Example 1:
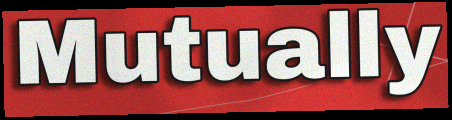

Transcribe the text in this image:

Mutually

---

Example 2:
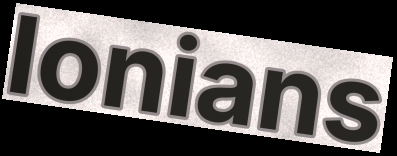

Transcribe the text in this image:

Ionians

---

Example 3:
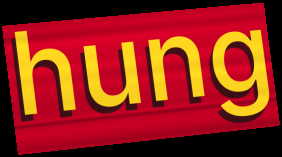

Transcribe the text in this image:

hung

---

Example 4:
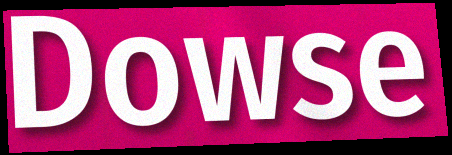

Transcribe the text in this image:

Dowse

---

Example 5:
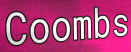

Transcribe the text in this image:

Coombs